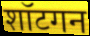
शॉटगन